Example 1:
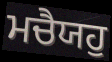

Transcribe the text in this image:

ਮਚੈਯਹੁ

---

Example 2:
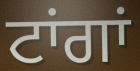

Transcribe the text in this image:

ਟਾਂਗਾਂ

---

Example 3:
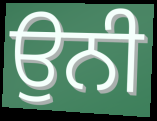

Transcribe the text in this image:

ਉਨੀ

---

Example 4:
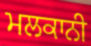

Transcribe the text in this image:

ਮਲਕਾਨੀ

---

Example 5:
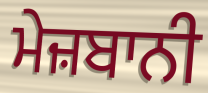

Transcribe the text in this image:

ਮੇਜ਼ਬਾਨੀ